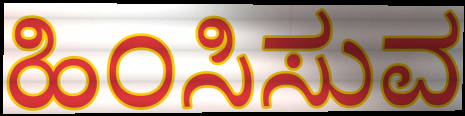
ಹಿಂಸಿಸುವ